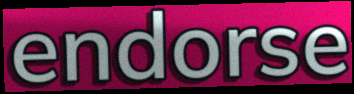
endorse